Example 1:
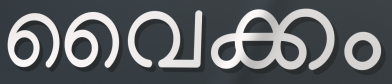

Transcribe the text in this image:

വൈക്കം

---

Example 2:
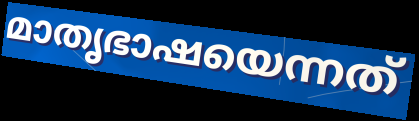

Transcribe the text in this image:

മാതൃഭാഷയെന്നത്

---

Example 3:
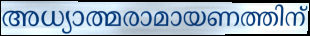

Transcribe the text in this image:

അധ്യാത്മരാമായണത്തിന്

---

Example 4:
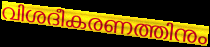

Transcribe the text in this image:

വിശദീകരണത്തിനും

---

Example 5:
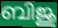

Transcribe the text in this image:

ബിജു